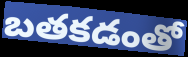
బతకడంతో